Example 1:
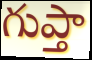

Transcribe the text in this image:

గుప్తా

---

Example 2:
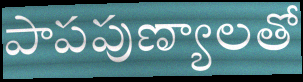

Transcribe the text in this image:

పాపపుణ్యాలతో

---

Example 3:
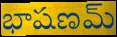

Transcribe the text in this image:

భాషణమ్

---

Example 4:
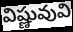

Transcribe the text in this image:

విష్ణువువి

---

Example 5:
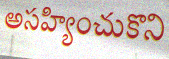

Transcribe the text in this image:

అసహ్యించుకొని